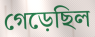
গেড়েছিল